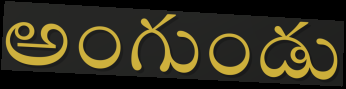
అంగుండు